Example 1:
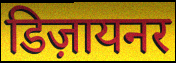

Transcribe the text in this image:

डिज़ायनर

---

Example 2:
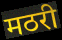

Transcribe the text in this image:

मठरी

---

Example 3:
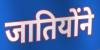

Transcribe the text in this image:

जातियोंने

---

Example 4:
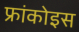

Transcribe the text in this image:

फ्रांकोइस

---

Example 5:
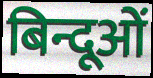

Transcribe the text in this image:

बिन्दूओं